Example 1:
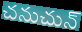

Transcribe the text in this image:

చనుచున్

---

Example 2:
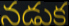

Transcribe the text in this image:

నడుక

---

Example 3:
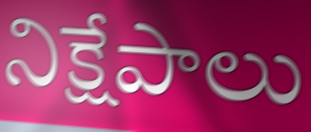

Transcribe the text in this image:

నిక్షేపాలు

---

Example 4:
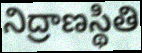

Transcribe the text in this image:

నిద్రాణస్థితి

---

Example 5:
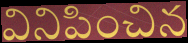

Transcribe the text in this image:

వినిపించిన